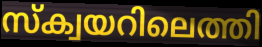
സ്ക്വയറിലെത്തി